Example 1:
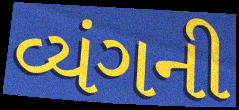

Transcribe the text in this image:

વ્યંગની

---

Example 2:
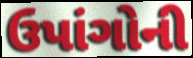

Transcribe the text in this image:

ઉપાંગોની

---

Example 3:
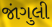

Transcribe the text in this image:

જાંગુલી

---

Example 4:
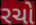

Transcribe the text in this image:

રચો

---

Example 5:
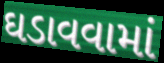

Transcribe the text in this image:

ઘડાવવામાં